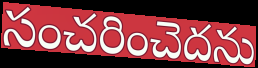
సంచరించెదను